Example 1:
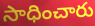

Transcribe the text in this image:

సాధించారు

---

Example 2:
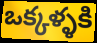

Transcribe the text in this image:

ఒక్కళ్ళకి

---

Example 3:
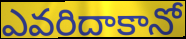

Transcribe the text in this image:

ఎవరిదాకానో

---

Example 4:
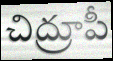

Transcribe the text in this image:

చిద్రూపీ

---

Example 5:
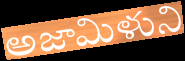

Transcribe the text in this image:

అజామిళుని